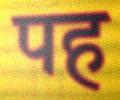
पह